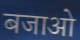
बजाओ